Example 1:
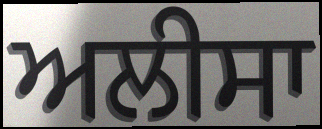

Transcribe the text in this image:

ਅਲੀਸਾ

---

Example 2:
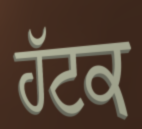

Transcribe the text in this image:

ਹੱਟਕ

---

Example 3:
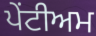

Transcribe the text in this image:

ਪੇਂਟੀਅਮ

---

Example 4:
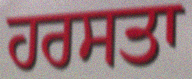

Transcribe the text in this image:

ਹਰਸਤਾ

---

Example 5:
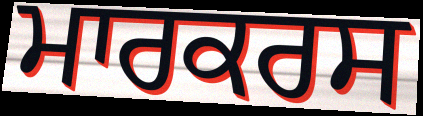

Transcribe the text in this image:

ਮਾਰਕਰਸ